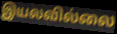
இயலவில்லை